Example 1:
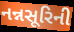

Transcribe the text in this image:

નન્નસૂરિની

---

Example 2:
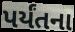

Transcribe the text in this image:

પર્યંતના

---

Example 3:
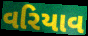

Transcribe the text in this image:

વરિયાવ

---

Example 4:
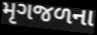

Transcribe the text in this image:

મૃગજળના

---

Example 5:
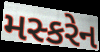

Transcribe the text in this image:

મસ્કરેન